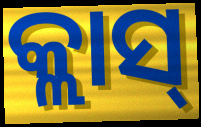
କ୍ଲାସ୍